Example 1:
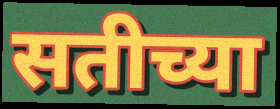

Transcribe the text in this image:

सतीच्या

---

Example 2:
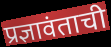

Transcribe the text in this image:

प्रज्ञावंताची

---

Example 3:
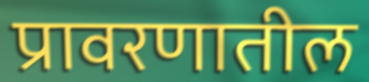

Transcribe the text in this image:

प्रावरणातील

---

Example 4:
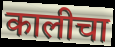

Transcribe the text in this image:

कालीचा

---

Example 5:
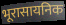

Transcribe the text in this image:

भूरासायनिक